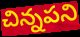
చిన్నపని